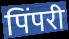
पिंपरी